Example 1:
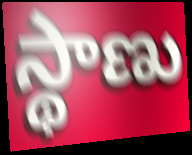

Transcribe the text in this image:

స్థాణు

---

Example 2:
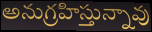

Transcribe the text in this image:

అనుగ్రహిస్తున్నావు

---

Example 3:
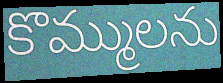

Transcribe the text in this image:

కొమ్ములను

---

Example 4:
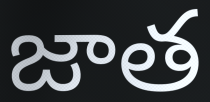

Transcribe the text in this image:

జాత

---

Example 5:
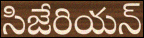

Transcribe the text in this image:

సిజేరియన్